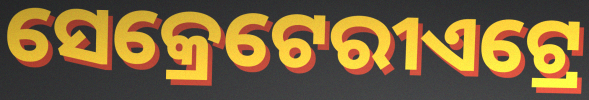
ସେକ୍ରେଟେରୀଏଟ୍ରେ